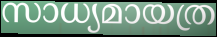
സാധ്യമായത്ര